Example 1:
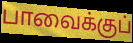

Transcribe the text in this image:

பாவைக்குப்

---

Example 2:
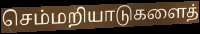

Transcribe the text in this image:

செம்மறியாடுகளைத்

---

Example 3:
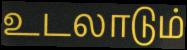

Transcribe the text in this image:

உடலாடும்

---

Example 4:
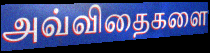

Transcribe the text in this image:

அவ்விதைகளை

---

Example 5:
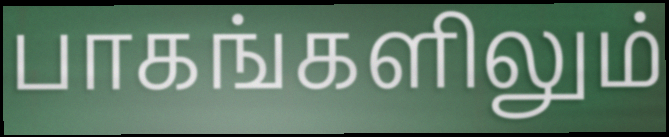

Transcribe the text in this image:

பாகங்களிலும்